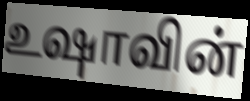
உஷாவின்